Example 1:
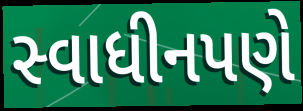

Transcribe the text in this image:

સ્વાધીનપણે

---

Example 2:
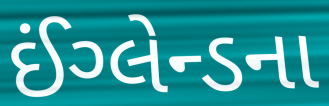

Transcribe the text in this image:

ઈંગ્લેન્ડના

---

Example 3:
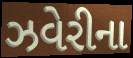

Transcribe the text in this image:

ઝવેરીના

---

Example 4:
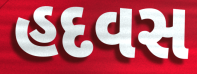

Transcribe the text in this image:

હદવસ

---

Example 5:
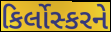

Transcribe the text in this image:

કિર્લોસ્કરને